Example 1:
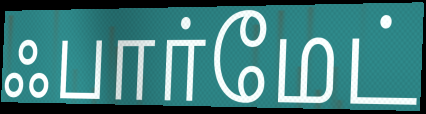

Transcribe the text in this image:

ஃபார்மேட்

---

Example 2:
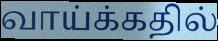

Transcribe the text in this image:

வாய்க்கதில்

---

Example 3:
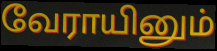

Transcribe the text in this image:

வேராயினும்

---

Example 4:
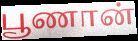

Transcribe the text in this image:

பூணான்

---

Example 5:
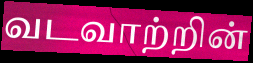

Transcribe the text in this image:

வடவாற்றின்